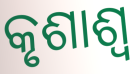
କୃଶାଶ୍ୱ